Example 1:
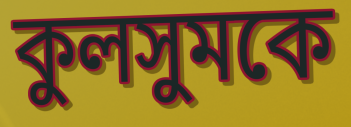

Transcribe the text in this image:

কুলসুমকে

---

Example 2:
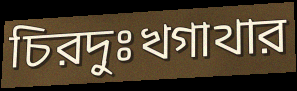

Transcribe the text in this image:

চিরদুঃখগাথার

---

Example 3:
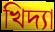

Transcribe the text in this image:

খিদ্যা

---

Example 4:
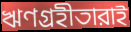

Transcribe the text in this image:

ঋণগ্রহীতারাই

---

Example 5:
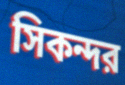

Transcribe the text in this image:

সিকন্দর